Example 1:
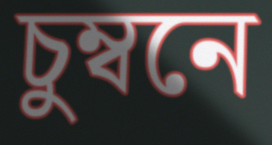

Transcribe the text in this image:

চুম্বনে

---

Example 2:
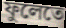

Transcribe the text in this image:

ফুলেতে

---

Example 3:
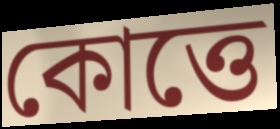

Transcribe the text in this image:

কোত্তে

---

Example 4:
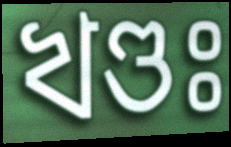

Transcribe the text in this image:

খণ্ডঃ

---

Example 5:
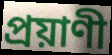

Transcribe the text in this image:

প্রয়াণী